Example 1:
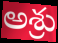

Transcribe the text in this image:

అశ్రు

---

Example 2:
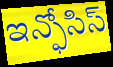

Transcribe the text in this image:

ఇన్ఫోసిస్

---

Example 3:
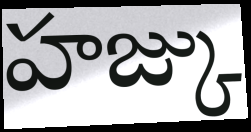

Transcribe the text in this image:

హజ్కు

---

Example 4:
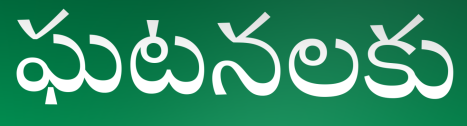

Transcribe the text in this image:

ఘటనలకు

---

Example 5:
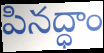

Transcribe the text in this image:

పినద్ధాం